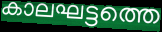
കാലഘട്ടത്തെ